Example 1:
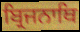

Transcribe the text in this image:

ਬ੍ਰਿਜਨਾਥਿ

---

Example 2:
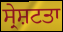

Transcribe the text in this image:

ਸ੍ਰੇਸ਼ਟਤਾ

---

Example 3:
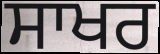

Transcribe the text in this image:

ਸਾਖਰ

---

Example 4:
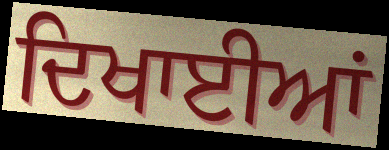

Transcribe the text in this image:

ਦਿਖਾਈਆਂ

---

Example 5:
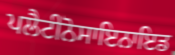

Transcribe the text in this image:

ਪਲੈਟੀਨੋਸਾਇਨਾਇਡ